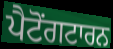
ਪੈਟੋਂਗਟਾਰਨ